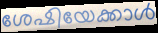
ശേഷിയേക്കാൾ